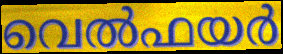
വെൽഫയർ